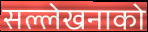
सल्लेखनाको